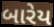
બારેય